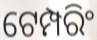
ଟେମ୍ପରିଂ